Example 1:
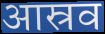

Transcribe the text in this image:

आस्रव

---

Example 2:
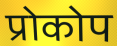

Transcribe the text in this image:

प्रोकोप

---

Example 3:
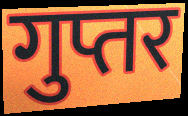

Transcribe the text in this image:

गुप्तर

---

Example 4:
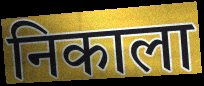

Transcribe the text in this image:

निकाला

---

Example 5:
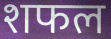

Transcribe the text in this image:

शफल